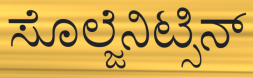
ಸೊಲ್ಜೆನಿಟ್ಸಿನ್